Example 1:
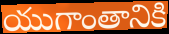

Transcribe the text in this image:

యుగాంతానికి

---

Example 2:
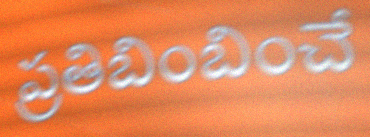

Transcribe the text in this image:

ప్రతిబింబించే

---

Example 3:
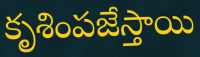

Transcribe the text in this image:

కృశింపజేస్తాయి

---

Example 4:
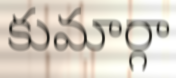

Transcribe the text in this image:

కుమార్గా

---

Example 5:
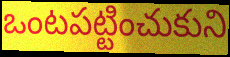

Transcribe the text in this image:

ఒంటపట్టించుకుని